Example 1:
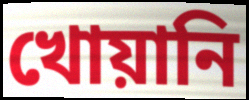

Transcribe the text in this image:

খোয়ানি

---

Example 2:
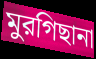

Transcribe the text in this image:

মুরগিছানা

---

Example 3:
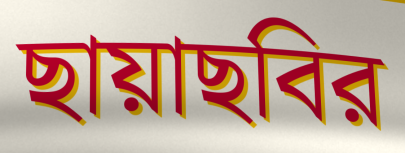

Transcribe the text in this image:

ছায়াছবির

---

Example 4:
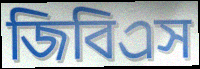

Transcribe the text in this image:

জিবিএস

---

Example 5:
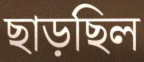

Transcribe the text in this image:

ছাড়ছিল